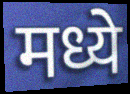
मध्ये